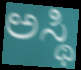
ಅಸ್ಥಿ